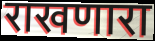
राखणारा